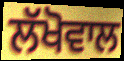
ਲੱਖੋਵਾਲ